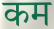
कम